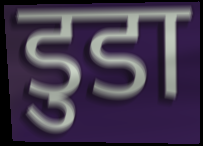
डुडा